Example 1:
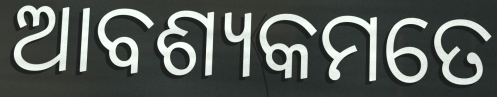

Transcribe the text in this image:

ଆବଶ୍ୟକମତେ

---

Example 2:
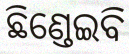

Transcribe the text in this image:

ଛିଣ୍ଡେଇବି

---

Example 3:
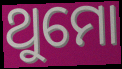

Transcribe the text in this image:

ଥୁମୋ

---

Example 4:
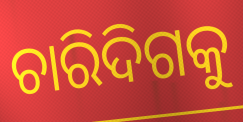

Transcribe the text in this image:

ଚାରିଦିଗକୁ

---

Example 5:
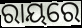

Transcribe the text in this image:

ରାୟରେ